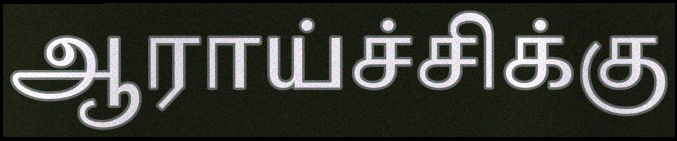
ஆராய்ச்சிக்கு